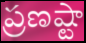
ప్రణష్టా